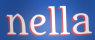
nella